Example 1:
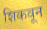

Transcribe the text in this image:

शिकवून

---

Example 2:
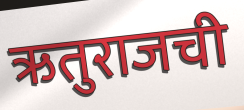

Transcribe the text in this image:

ऋतुराजची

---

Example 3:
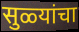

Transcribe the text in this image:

सुळ्यांचा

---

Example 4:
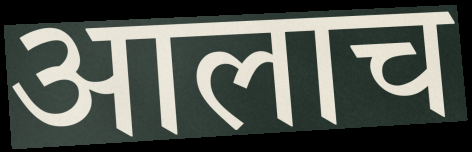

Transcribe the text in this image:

आलाच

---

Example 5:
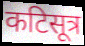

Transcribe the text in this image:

कटिसूत्र